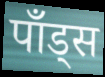
पाँड्स